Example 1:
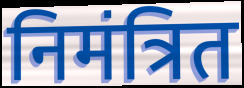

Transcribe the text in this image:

निमंत्रित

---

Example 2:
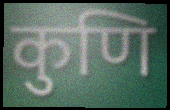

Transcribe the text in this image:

कुणि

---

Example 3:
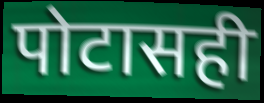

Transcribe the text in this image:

पोटासही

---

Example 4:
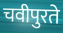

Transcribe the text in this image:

चवीपुरते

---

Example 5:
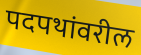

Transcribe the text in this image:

पदपथांवरील